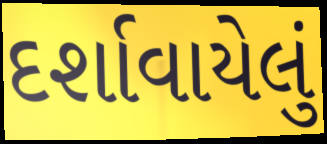
દર્શાવાયેલું